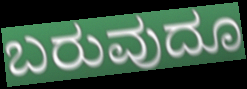
ಬರುವುದೂ